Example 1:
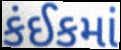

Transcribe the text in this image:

કંઈકમાં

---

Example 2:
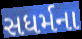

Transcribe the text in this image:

સધર્મના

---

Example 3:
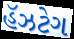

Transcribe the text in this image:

હૅઝટેગ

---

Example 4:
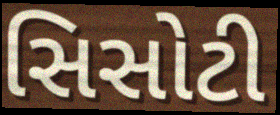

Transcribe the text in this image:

સિસોટી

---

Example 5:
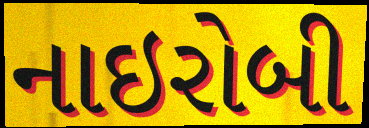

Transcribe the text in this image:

નાઇરોબી